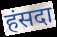
हंसदा